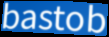
bastob